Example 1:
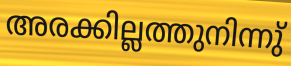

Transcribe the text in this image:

അരക്കില്ലത്തുനിന്നു്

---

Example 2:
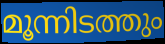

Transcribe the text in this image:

മൂന്നിടത്തും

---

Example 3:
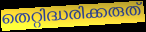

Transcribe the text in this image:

തെറ്റിദ്ധരിക്കരുത്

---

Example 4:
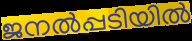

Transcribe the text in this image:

ജനൽപ്പടിയിൽ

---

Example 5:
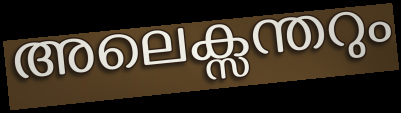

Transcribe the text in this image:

അലെക്സന്തറും